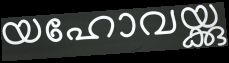
യഹോവയ്ക്കു